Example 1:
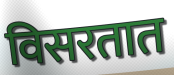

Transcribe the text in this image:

विसरतात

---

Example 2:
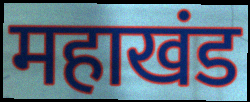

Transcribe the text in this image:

महाखंड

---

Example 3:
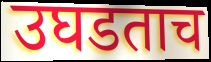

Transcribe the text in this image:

उघडताच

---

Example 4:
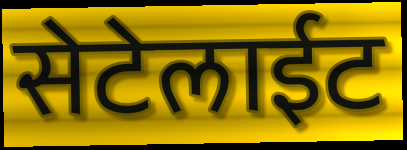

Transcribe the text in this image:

सेटेलाईट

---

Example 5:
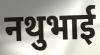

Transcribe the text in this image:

नथुभाई